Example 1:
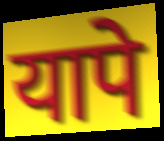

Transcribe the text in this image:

यापे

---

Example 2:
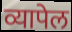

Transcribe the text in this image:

व्यापेल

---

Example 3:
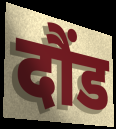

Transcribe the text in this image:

दौंड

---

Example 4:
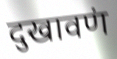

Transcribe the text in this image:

दुखावणं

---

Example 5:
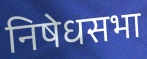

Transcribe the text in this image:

निषेधसभा